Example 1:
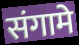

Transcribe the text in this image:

संगामे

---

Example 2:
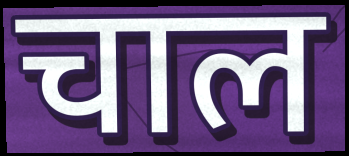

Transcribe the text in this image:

चाल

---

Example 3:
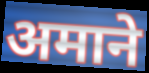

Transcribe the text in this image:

अमाने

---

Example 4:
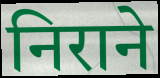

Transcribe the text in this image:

निराने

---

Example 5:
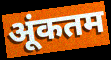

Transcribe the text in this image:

अूंकतम